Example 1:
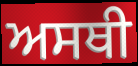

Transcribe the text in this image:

ਅਸਥੀ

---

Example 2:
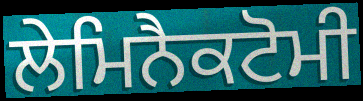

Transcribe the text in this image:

ਲੇਮਿਨੈਕਟੋਮੀ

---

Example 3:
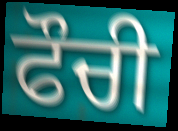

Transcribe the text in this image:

ਫੌਚੀ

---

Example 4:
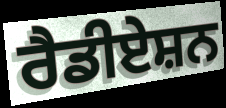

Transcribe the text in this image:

ਰੈਡੀਏਸ਼ਨ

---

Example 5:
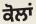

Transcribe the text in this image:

ਕੋਲਾਂ